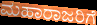
ಮಹಾರಾಜರಿಗೆ